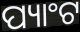
ପ୍ୟାଂଟ